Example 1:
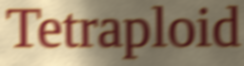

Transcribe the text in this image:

Tetraploid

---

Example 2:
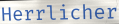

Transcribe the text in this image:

Herrlicher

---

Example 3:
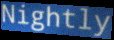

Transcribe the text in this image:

Nightly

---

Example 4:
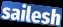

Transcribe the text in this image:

sailesh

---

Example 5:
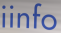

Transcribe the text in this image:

iinfo